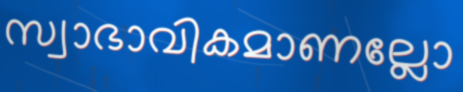
സ്വാഭാവികമാണല്ലോ